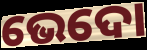
ଭେଦୋ